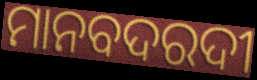
ମାନବଦରଦୀ